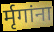
र्मृगांना